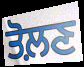
ਤੋਲ਼ਣ